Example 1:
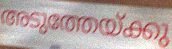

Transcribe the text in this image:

അടുത്തേയ്ക്കു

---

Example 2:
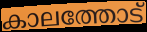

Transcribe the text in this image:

കാലത്തോട്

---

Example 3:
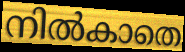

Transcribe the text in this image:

നിൽകാതെ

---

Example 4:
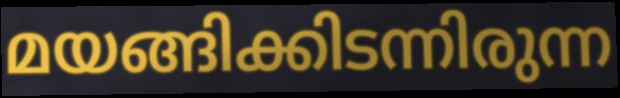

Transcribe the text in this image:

മയങ്ങിക്കിടന്നിരുന്ന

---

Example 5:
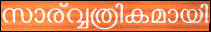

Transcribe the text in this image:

സാര്വ്വത്രികമായി